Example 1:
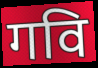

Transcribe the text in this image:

गवि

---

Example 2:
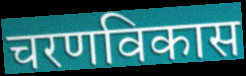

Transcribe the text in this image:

चरणविकास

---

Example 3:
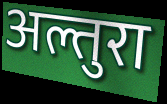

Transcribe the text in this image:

अल्तुरा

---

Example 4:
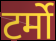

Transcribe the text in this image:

टर्मो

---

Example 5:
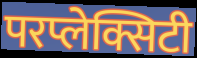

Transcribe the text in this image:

परप्लेक्सिटी